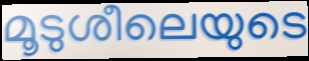
മൂടുശീലെയുടെ